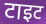
टाइट